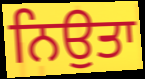
ਨਿਉਤਾ